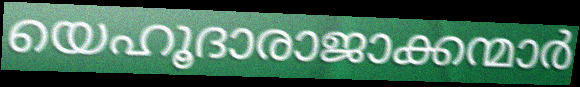
യെഹൂദാരാജാക്കന്മാർ